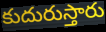
కుదురుస్తారు